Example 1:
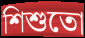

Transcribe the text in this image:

শিশুতো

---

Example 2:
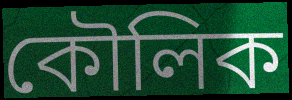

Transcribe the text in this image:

কৌলিক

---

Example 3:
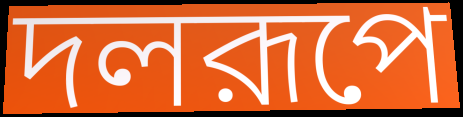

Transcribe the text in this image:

দলরূপে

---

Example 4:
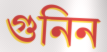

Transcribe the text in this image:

গুনিন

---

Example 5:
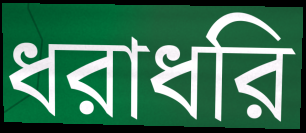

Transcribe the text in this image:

ধরাধরি